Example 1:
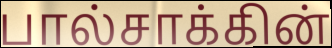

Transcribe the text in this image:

பால்சாக்கின்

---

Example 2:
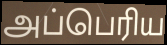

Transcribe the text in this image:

அப்பெரிய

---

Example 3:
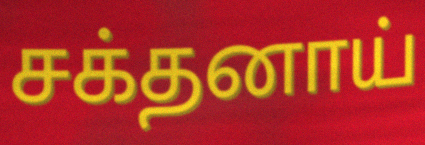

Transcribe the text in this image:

சக்தனாய்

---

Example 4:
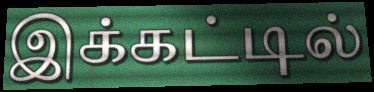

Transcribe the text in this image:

இக்கட்டில்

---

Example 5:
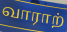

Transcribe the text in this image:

வாராற்